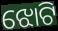
ଝୋଟି